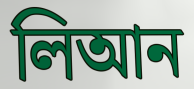
লিআন